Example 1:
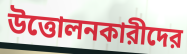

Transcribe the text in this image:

উত্তোলনকারীদের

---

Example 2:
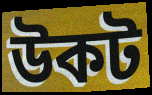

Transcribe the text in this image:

উকট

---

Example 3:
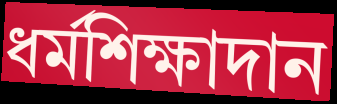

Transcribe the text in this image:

ধর্মশিক্ষাদান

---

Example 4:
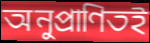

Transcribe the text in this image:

অনুপ্রাণিতই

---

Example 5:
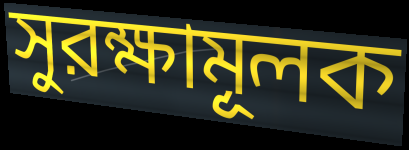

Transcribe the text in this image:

সুরক্ষামূলক